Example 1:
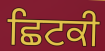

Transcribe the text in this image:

ਛਿਟਕੀ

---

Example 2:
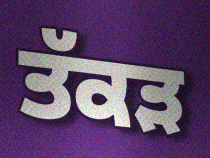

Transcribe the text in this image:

ਤੱਕੜ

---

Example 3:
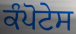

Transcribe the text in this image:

ਕੰਪੋਟੇਸ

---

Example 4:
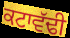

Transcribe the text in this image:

ਕਟਾਵੱਢੀ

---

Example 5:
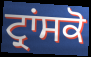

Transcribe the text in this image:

ਟ੍ਰਾਂਸਕੋ